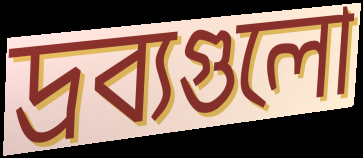
দ্রব্যগুলো